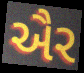
ઐર